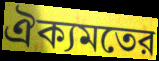
ঐক্যমতের